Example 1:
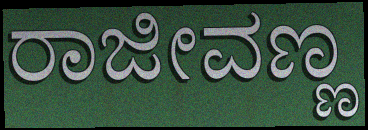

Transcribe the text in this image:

ರಾಜೀವಣ್ಣ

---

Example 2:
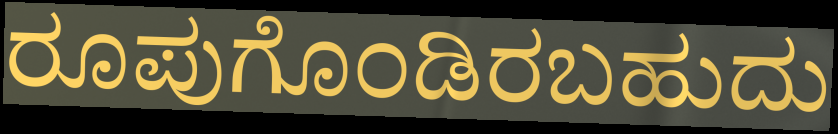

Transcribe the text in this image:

ರೂಪುಗೊಂಡಿರಬಹುದು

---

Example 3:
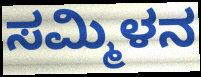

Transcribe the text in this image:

ಸಮ್ಮಿಳನ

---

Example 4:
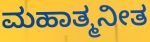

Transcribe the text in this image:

ಮಹಾತ್ಮನೀತ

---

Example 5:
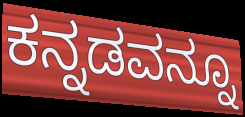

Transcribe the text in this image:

ಕನ್ನಡವನ್ನೂ